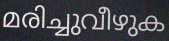
മരിച്ചുവീഴുക